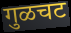
गुळचट